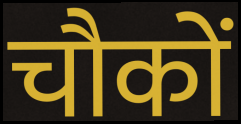
चौकों